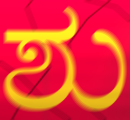
ಶು